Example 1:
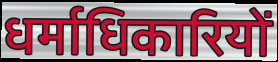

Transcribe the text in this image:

धर्माधिकारियों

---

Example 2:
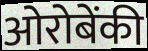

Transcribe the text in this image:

ओरोबेंकी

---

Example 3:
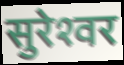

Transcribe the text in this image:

सुरेश्वर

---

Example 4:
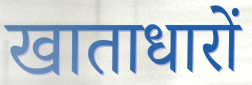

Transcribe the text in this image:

खाताधारों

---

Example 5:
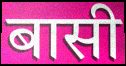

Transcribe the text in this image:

बासी